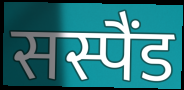
सस्पैंड